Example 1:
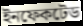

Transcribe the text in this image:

ইনফেকটেড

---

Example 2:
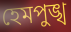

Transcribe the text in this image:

হেমপুঙ্খ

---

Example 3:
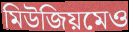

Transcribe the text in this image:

মিউজিয়মেও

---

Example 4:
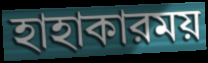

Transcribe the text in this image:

হাহাকারময়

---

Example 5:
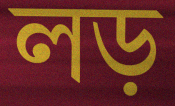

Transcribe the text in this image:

লড়